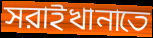
সরাইখানাতে